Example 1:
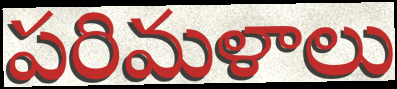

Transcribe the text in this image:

పరిమళాలు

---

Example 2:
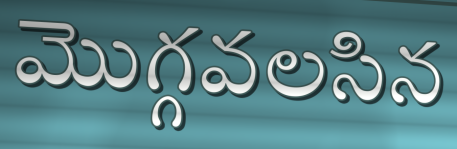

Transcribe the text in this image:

మొగ్గవలసిన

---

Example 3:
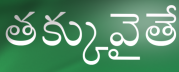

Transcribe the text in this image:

తక్కువైతే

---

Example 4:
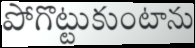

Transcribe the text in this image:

పోగొట్టుకుంటాను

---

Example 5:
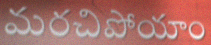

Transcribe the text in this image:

మరచిపోయాం